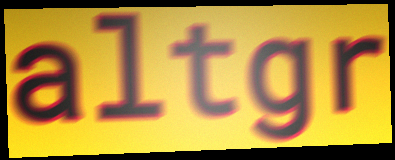
altgr